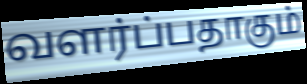
வளர்ப்பதாகும்